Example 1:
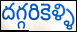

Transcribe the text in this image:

దగ్గరికెళ్ళి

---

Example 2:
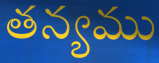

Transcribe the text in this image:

తన్యము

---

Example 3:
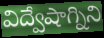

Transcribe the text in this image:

విద్వేషాగ్నిని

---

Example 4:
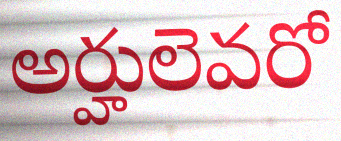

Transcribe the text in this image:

అర్హులెవరో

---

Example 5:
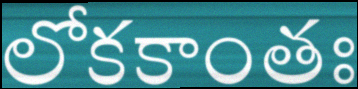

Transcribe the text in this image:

లోకకాంతః